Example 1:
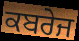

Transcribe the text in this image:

ਕਬਰੇਜ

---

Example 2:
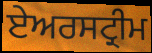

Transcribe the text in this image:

ਏਅਰਸਟ੍ਰੀਮ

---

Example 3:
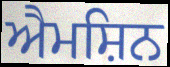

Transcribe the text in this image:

ਐਮਸ਼ਿਨ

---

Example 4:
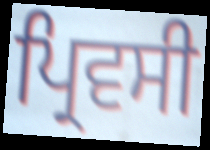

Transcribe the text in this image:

ਪ੍ਰਿਵਸੀ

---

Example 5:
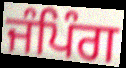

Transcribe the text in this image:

ਜੰਪਿੰਗ